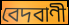
বেদবাণী